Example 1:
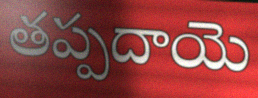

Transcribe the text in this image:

తప్పదాయె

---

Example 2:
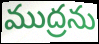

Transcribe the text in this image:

ముద్రను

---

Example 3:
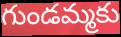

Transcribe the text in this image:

గుండమ్మకు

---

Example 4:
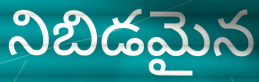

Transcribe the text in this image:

నిబిడమైన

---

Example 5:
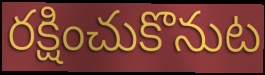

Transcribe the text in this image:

రక్షించుకొనుట